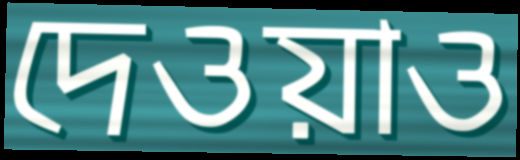
দেওয়াও